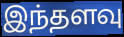
இந்தளவு